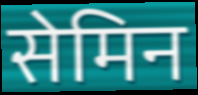
सेमिन